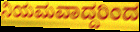
ನಿಯಮವಾದ್ದರಿಂದ